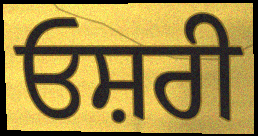
ਓਸ਼ਰੀ